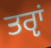
ਤਰੵਾਂ